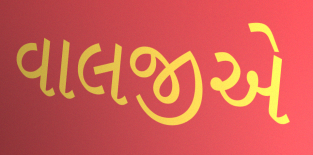
વાલજીએ